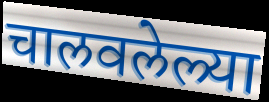
चालवलेल्या